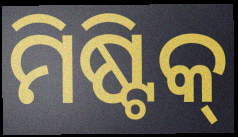
ମିଷ୍ଟିକ୍